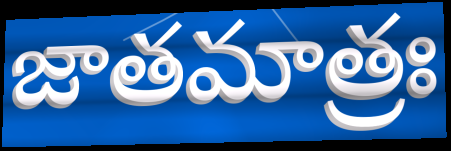
జాతమాత్రః